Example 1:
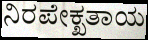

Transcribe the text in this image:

ನಿರಪೇಕ್ಖತಾಯ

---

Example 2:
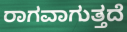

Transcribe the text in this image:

ರಾಗವಾಗುತ್ತದೆ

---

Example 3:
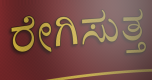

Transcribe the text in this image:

ರೇಗಿಸುತ್ತ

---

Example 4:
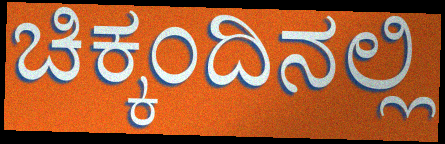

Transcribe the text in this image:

ಚಿಕ್ಕಂದಿನಲ್ಲಿ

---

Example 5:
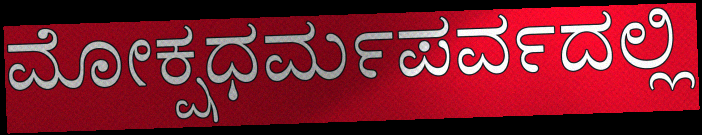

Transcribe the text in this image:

ಮೋಕ್ಷಧರ್ಮಪರ್ವದಲ್ಲಿ